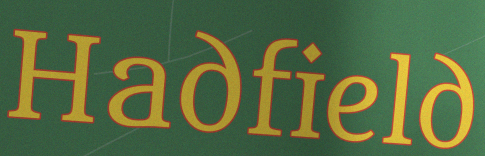
Hadfield